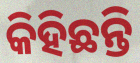
କିହିଛନ୍ତି